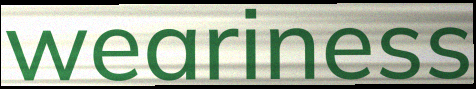
weariness